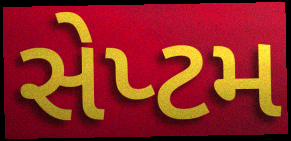
સેપ્ટમ